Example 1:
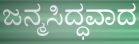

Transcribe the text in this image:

ಜನ್ಮಸಿದ್ಧವಾದ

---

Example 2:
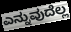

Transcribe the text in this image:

ಎನ್ನುವುದೆಲ್ಲ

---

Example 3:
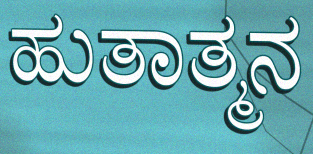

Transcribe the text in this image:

ಹುತಾತ್ಮನ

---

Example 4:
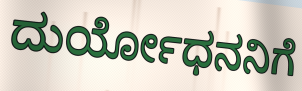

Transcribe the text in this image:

ದುರ್ಯೋಧನನಿಗೆ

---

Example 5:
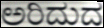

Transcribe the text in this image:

ಅರಿದುದ